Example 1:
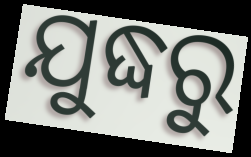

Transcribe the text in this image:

ଯୁଦ୍ଧରୁ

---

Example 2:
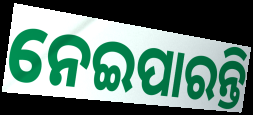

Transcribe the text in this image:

ନେଇପାରନ୍ତି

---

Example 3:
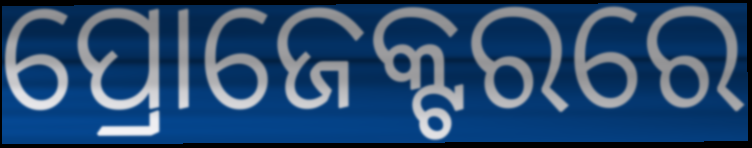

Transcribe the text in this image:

ପ୍ରୋଜେକ୍ଟରରେ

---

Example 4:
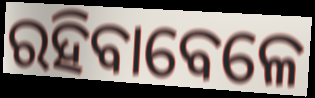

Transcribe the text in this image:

ରହିବାବେଳେ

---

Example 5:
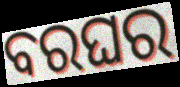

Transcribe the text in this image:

ବରଘର